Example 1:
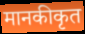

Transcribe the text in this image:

मानकीकृत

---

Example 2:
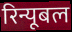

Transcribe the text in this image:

रिन्यूबल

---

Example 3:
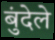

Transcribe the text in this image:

बुंदेले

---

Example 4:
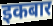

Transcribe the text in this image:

इकबार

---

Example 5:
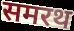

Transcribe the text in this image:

समरथ